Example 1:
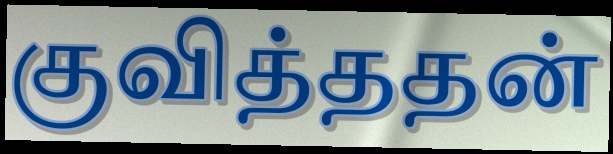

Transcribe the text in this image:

குவித்ததன்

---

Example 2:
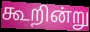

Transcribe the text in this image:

கூறின்று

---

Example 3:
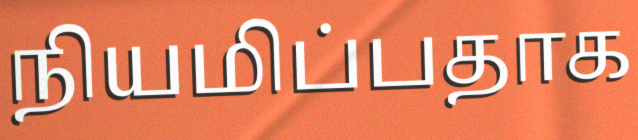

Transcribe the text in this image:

நியமிப்பதாக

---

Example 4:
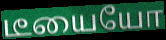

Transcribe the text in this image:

டீயையோ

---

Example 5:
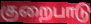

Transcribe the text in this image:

குறைபாடு